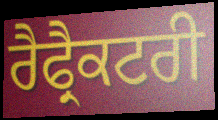
ਰੈਫ੍ਰੈਕਟਰੀ